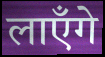
लाएँगे